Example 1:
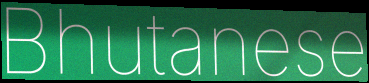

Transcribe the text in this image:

Bhutanese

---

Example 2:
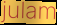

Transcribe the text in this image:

julam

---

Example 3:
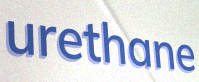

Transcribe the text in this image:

urethane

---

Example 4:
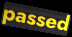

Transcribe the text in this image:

passed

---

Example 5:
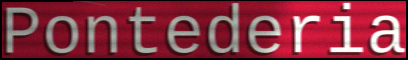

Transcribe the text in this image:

Pontederia